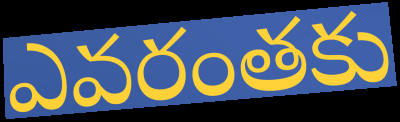
ఎవరంతకు